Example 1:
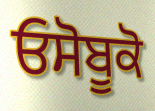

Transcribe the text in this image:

ਓਸੋਬੂਕੋ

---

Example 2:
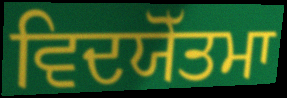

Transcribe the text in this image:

ਵਿਦਯੋੱਤਮਾ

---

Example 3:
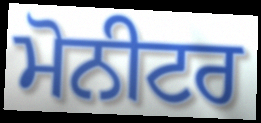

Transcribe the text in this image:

ਮੋਨੀਟਰ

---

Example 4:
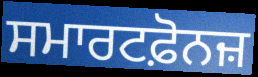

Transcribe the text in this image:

ਸਮਾਰਟਫ਼ੋਨਜ਼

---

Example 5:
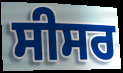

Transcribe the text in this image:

ਸੀਸਰ